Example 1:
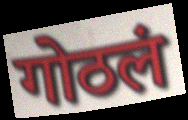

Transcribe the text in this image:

गोठलं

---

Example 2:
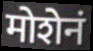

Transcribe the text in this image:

मोशेनं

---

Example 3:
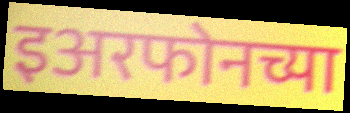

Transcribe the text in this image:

इअरफोनच्या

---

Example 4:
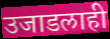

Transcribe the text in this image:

उजाडलाही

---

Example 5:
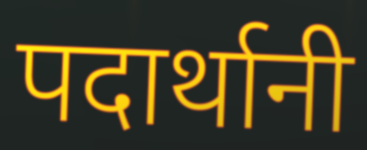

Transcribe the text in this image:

पदार्थानी